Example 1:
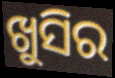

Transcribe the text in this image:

ଖୁସିର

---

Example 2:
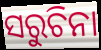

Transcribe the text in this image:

ସରୁଚିନା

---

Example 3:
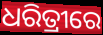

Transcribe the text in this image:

ଧରିତ୍ରୀରେ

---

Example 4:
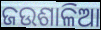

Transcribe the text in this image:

ଜଉଶାଳିଆ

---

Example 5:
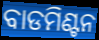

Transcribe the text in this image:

ବାଡମିଣ୍ଟନ